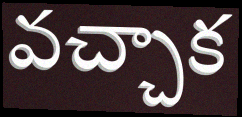
వచ్చాక